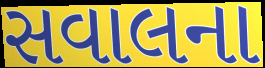
સવાલના